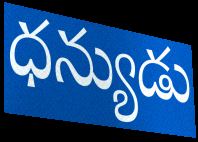
ధన్యుడు